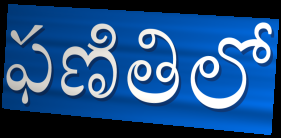
ఫణితిలో